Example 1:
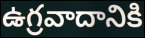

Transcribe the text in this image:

ఉగ్రవాదానికి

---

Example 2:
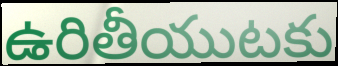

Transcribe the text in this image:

ఉరితీయుటకు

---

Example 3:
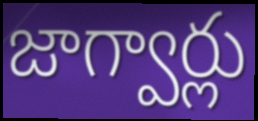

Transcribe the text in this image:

జాగ్వార్లు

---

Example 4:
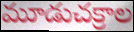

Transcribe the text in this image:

మూడుచక్రాల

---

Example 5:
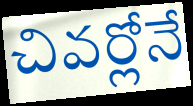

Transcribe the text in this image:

చివర్లోనే